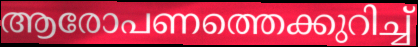
ആരോപണത്തെക്കുറിച്ച്